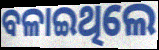
ବଳାଇଥିଲେ